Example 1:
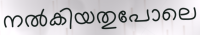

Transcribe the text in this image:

നൽകിയതുപോലെ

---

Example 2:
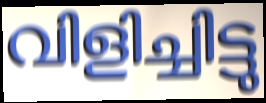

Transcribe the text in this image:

വിളിച്ചിട്ടു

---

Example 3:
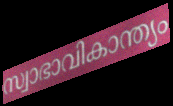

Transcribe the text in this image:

സ്വാഭാവികാന്ത്യം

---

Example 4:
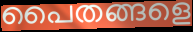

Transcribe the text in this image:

പൈതങ്ങളെ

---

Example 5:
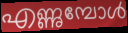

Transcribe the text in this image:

എണ്ണുമ്പോൾ